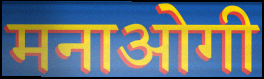
मनाओगी